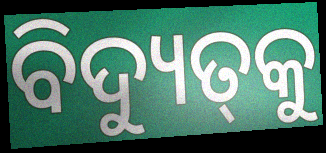
ବିଦ୍ୟୁତ୍‌କୁ